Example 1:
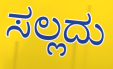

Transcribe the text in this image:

ಸಲ್ಲದು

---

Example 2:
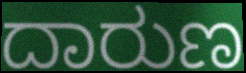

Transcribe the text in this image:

ದಾರುಣ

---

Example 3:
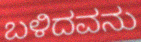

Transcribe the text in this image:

ಬಳಿದವನು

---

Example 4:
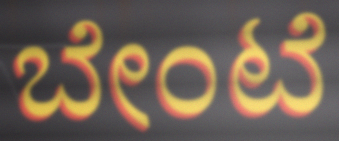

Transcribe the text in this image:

ಬೇಂಟೆ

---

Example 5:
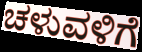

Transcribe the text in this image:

ಚಳುವಳಿಗೆ